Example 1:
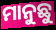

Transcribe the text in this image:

ମାନୁଛୁ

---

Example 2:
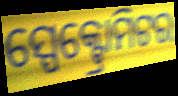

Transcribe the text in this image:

ସ୍ପେକ୍ଟ୍ରୋମିଟର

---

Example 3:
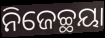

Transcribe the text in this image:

ନିଜେଚ୍ଛୟା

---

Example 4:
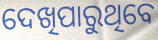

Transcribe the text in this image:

ଦେଖିପାରୁଥିବେ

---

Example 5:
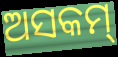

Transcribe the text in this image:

ଅସକମ୍